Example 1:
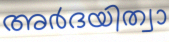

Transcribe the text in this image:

അർദയിത്വാ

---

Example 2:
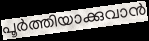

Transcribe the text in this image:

പൂർത്തിയാക്കുവാൻ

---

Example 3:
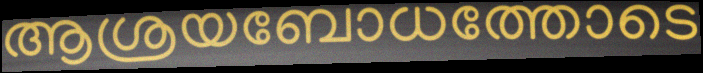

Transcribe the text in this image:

ആശ്രയബോധത്തോടെ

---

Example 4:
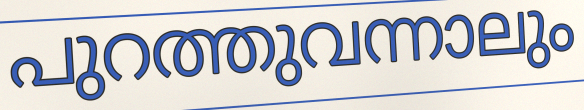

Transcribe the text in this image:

പുറത്തുവന്നാലും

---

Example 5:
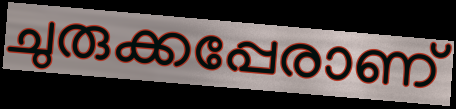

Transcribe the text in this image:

ചുരുക്കപ്പേരാണ്